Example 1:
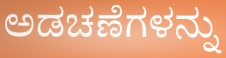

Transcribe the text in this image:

ಅಡಚಣೆಗಳನ್ನು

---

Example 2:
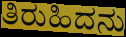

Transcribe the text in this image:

ತಿರುಹಿದನು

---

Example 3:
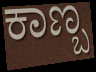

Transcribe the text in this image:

ಕಾಣ್ಬ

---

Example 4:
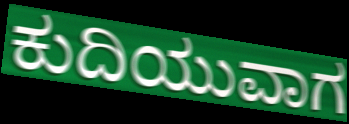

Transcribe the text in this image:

ಕುದಿಯುವಾಗ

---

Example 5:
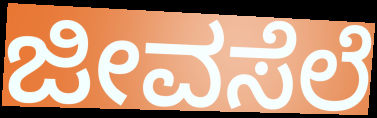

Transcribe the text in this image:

ಜೀವಸೆಲೆ